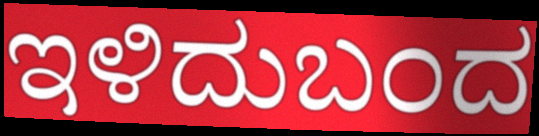
ಇಳಿದುಬಂದ